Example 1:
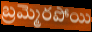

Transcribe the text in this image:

బ్రమ్మెరపోయి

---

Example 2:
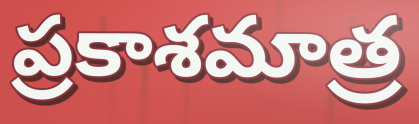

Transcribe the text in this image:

ప్రకాశమాత్ర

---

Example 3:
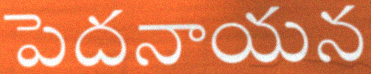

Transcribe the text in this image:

పెదనాయన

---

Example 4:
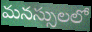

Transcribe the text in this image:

మనస్సులలో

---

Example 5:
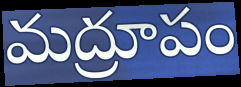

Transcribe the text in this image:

మద్రూపం